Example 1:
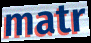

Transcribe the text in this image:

matr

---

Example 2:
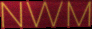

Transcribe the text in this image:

NWM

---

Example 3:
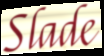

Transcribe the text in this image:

Slade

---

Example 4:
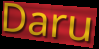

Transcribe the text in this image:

Daru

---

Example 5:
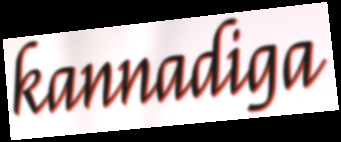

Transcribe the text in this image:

kannadiga